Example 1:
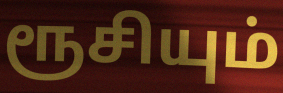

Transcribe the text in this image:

ரூசியும்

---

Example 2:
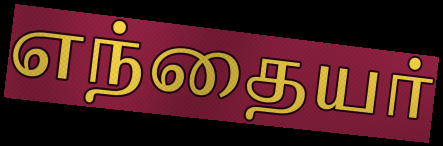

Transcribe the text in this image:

எந்தையர்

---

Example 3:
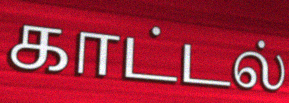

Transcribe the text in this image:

காட்டல்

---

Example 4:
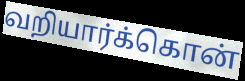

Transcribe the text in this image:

வறியார்க்கொன்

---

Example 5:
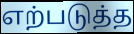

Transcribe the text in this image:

எற்படுத்த